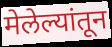
मेलेल्यांतून